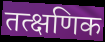
तत्क्षणिक